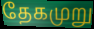
தேகமுறு